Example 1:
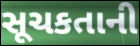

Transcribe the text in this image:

સૂચકતાની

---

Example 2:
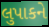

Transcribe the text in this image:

લુપાકને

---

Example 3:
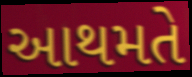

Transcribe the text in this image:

આથમતે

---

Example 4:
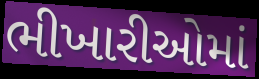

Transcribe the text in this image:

ભીખારીઓમાં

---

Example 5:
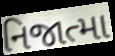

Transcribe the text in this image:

નિજાત્મા